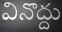
వినొద్దు